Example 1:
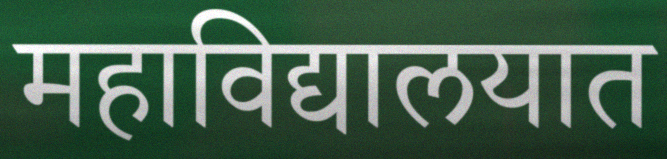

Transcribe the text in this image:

महाविद्यालयात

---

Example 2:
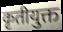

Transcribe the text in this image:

कृतीयुक्त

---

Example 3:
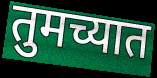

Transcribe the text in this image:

तुमच्यात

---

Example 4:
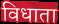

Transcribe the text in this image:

विधाता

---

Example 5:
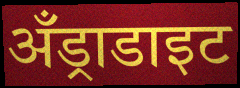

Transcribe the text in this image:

अँड्राडाइट